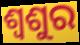
ଶ୍ଵଶୁର